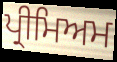
ਪ੍ਰੀਮਿਅਮ